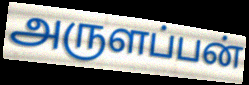
அருளப்பன்